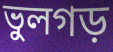
ভুলগড়